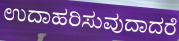
ಉದಾಹರಿಸುವುದಾದರೆ